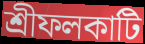
শ্রীফলকাটি